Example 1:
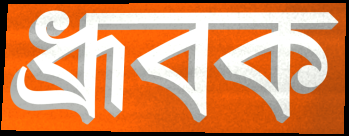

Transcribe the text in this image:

ধ্রূবক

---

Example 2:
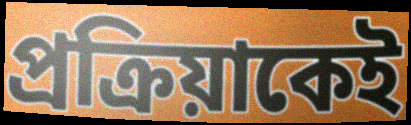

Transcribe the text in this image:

প্রক্রিয়াকেই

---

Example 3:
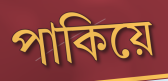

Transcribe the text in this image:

পাকিয়ে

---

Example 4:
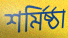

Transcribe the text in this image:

শর্মিষ্ঠা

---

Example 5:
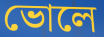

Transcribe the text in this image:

ভোলে